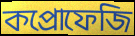
কপ্রোফেজি